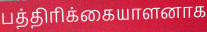
பத்திரிக்கையாளனாக